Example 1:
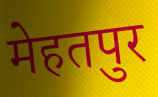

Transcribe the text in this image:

मेहतपुर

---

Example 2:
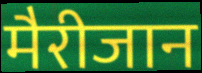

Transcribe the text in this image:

मैरीजान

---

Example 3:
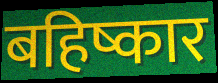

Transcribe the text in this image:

बहिष्‍कार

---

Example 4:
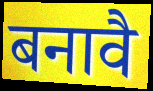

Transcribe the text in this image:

बनावै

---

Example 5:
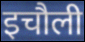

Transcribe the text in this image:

इचौली